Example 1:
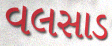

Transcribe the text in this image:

વલસાડ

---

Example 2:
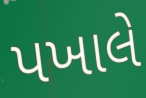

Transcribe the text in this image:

પખાલે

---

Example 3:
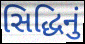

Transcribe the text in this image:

સિદ્ધિનું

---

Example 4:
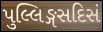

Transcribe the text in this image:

પુલ્લિઙ્ગસદિસં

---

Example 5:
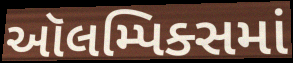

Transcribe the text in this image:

ઑલમ્પિક્સમાં